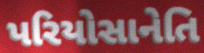
પરિયોસાનેતિ